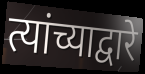
त्यांच्याद्वारे